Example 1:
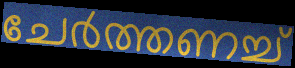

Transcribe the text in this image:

ചേർത്തണച്ച്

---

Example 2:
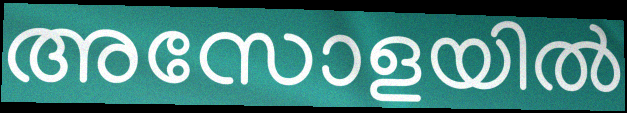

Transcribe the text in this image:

അസോളയിൽ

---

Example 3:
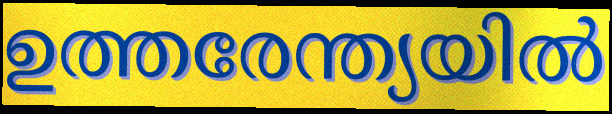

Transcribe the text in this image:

ഉത്തരേന്ത്യയിൽ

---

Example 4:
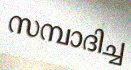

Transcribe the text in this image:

സമ്പാദിച്ച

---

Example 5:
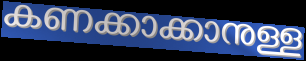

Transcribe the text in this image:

കണക്കാക്കാനുള്ള